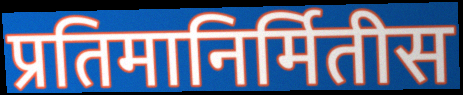
प्रतिमानिर्मितीस